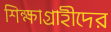
শিক্ষাগ্রাহীদের